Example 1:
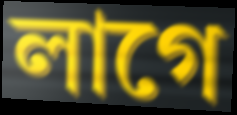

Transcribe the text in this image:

লাগে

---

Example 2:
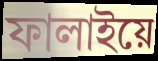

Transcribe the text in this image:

ফালাইয়ে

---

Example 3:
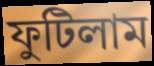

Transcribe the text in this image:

ফুটিলাম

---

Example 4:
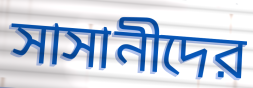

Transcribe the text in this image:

সাসানীদের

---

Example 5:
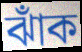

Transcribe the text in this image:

ঝাঁক